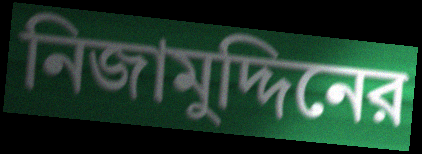
নিজামুদ্দিনের